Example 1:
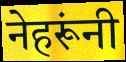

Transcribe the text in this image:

नेहरूंनी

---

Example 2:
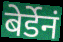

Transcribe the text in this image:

बेर्डेनं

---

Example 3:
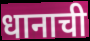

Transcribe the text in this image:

धानाची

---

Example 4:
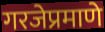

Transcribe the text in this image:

गरजेप्रमाणे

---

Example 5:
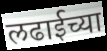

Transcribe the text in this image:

लढाईच्या